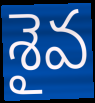
శైవ